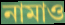
নামাও